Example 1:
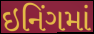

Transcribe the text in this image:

ઇનિંગમાં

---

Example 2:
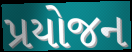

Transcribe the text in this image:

પ્રયોજન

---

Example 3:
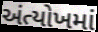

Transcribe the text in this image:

અંત્યોખમાં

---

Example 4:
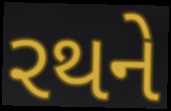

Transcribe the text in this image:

રથને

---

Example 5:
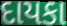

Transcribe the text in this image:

દાયકા